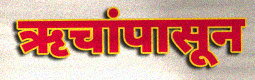
ऋचांपासून